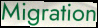
Migration